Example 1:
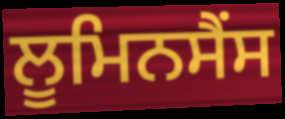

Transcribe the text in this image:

ਲੂਮਿਨਸੈਂਸ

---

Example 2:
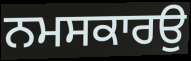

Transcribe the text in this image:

ਨਮਸਕਾਰਉ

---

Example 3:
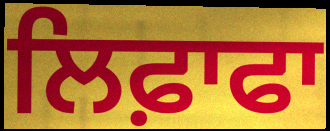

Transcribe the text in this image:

ਲਿਫ਼ਾਫਾ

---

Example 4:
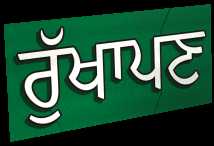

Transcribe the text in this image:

ਰੁੱਖਾਪਣ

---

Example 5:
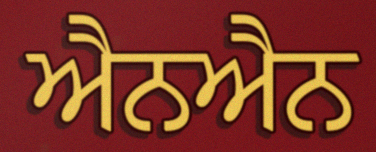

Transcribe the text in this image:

ਐਨਐਨ